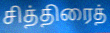
சித்திரைத்